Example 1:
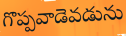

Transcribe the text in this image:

గొప్పవాడెవడును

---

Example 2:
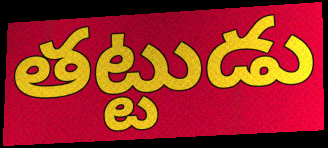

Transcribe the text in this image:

తట్టుడు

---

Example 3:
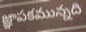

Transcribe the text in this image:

జ్ఞాపకమున్నది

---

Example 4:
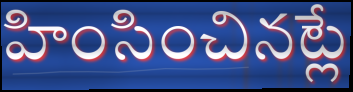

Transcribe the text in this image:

హింసించినట్లే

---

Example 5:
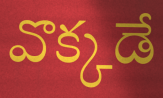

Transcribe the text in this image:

వొక్కడే